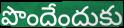
పొందేందుకు